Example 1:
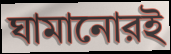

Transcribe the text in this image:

ঘামানোরই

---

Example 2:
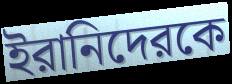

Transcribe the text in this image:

ইরানিদেরকে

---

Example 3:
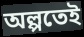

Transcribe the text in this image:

অল্পতেই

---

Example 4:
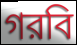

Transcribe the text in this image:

গরবি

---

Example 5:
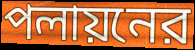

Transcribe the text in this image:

পলায়নের